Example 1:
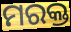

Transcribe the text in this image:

ମରକ୍ତ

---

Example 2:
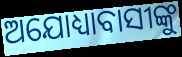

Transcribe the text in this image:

ଅଯୋଧ୍ୟାବାସୀଙ୍କୁ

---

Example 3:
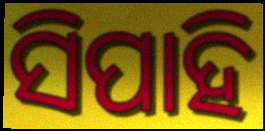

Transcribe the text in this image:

ସିପାହି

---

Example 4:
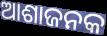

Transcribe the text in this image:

ଆଶାଜନକ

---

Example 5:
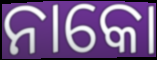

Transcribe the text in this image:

ନାକୋ